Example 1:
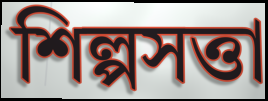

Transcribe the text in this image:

শিল্পসত্তা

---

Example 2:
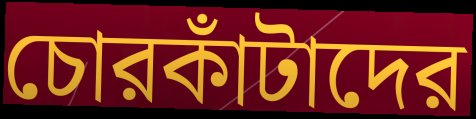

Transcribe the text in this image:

চোরকাঁটাদের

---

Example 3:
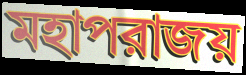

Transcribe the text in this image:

মহাপরাজয়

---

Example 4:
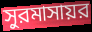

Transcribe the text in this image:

সুরমাসায়র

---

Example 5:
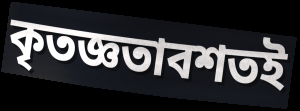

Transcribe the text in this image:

কৃতজ্ঞতাবশতই